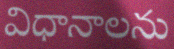
విధానాలను